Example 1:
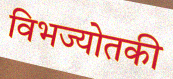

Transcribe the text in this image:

विभज्योतकी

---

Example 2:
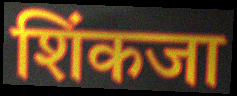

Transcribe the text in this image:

शिंकजा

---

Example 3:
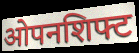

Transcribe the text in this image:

ओपनशिफ्ट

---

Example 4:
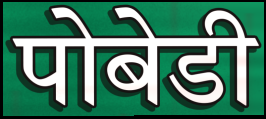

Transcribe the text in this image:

पोबेडी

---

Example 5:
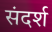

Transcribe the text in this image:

संदर्श